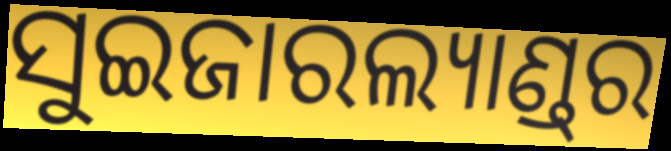
ସୁଇଜାରଲ୍ୟାଣ୍ଡ୍‌ର